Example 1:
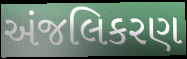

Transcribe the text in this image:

અંજલિકરણ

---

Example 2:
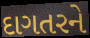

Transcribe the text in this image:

દાગતરને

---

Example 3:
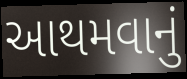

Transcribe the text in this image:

આથમવાનું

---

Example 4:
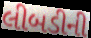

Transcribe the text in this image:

લીબડીની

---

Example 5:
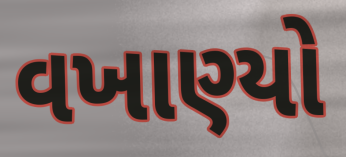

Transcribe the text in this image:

વખાણ્યો